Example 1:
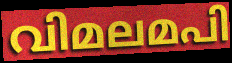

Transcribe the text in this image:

വിമലമപി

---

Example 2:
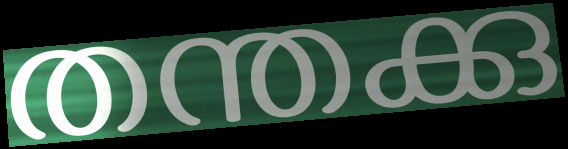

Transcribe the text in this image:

തന്തക്കു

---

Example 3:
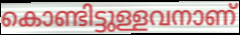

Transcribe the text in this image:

കൊണ്ടിട്ടുള്ളവനാണ്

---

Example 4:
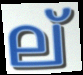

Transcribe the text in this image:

ല്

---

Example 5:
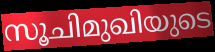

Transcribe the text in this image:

സൂചിമുഖിയുടെ